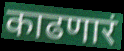
काढणारं